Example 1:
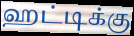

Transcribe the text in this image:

ஹட்டிக்கு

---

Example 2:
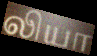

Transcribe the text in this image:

லியா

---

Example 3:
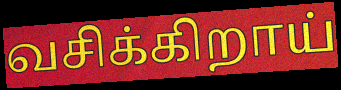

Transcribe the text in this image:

வசிக்கிறாய்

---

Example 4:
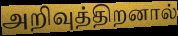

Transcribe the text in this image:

அறிவுத்திறனால்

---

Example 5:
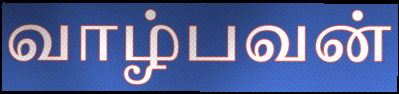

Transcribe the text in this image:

வாழ்பவன்